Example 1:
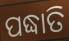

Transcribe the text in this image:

ପଦ୍ଧାତି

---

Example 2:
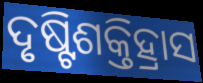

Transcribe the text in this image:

ଦୃଷ୍ଟିଶକ୍ତିହ୍ରାସ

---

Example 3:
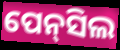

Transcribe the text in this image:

ପେନ୍‍ସିଲ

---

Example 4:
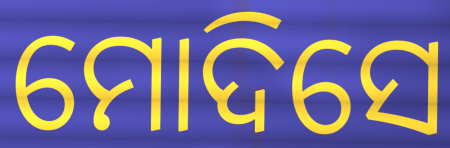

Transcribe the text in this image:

ମୋଦିସେ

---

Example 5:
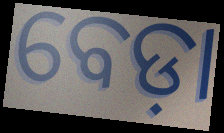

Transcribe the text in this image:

ବେଡ଼ା